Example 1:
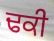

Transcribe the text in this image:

ਢਕੀ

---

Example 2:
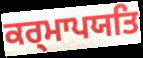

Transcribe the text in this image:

ਕਰ੍ਮਾਪਯਤਿ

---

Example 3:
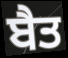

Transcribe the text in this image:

ਬੈਤ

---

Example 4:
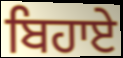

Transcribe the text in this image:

ਬਿਹਾਏ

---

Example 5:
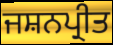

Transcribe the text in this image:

ਜਸ਼ਨਪ੍ਰੀਤ